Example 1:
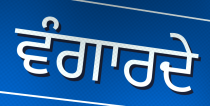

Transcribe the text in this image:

ਵੰਗਾਰਦੇ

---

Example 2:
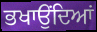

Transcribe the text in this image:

ਭਖਾਉਂਦਿਆਂ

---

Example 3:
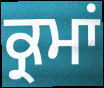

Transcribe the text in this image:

ਕ੍ਰਮਾਂ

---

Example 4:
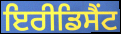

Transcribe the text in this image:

ਇਰੀਡਿਸੈਂਟ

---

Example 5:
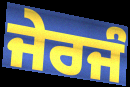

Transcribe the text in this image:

ਜੇਰਜੰ